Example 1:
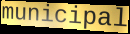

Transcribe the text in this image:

municipal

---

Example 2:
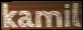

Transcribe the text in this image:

kamil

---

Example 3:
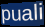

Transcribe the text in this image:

puali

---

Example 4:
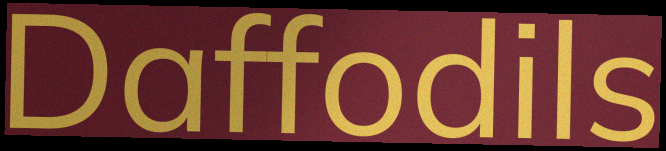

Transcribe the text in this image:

Daffodils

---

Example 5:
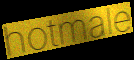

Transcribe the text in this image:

hotmale